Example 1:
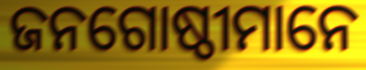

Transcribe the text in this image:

ଜନଗୋଷ୍ଠୀମାନେ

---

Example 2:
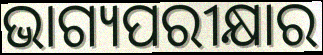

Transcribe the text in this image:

ଭାଗ୍ୟପରୀକ୍ଷାର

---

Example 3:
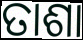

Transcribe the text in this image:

ତାଶା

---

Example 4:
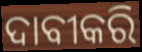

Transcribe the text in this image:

ଦାବୀକରି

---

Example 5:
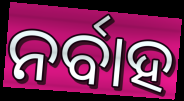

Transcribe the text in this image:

ନର୍ବାହ